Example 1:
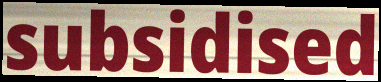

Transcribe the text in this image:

subsidised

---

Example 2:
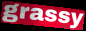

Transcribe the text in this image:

grassy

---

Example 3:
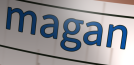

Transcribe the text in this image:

magan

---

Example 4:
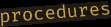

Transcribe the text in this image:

procedures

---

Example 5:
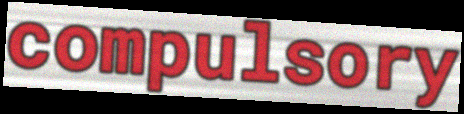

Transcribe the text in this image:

compulsory